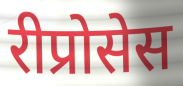
रीप्रोसेस